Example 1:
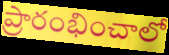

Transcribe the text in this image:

ప్రారంభించాలో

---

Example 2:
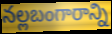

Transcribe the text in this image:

నల్లబంగారాన్ని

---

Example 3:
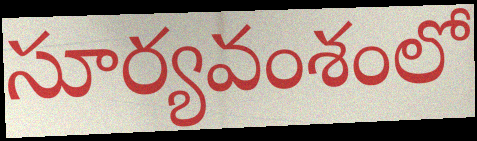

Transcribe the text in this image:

సూర్యవంశంలో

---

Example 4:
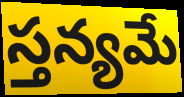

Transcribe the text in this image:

స్తన్యమే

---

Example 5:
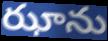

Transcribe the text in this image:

ఝాను